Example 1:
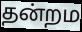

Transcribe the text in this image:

தன்றம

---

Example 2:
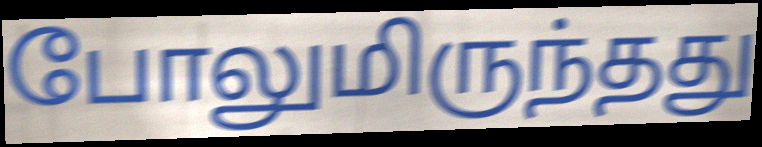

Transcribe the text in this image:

போலுமிருந்தது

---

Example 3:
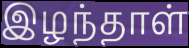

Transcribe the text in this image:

இழந்தாள்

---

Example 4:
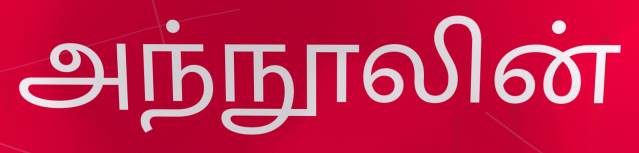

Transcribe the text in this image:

அந்நூலின்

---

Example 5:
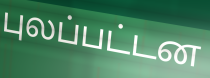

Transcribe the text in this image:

புலப்பட்டன